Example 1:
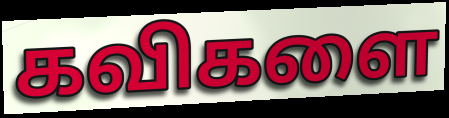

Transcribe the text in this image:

கவிகளை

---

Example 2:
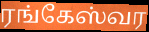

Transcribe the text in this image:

ரங்கேஸ்வர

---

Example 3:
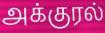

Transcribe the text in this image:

அக்குரல்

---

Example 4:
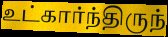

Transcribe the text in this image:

உட்கார்ந்திருந்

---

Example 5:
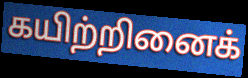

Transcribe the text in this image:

கயிற்றினைக்